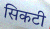
सिकटी